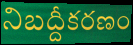
నిబద్దీకరణం